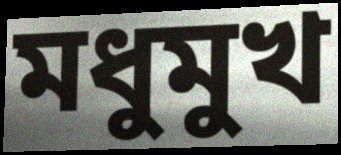
মধুমুখ